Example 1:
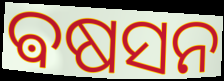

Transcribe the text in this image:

ଵଷସନ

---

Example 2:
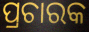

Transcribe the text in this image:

ପ୍ରଚାରକ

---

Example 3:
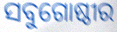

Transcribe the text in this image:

ସବୁଗୋଷ୍ଠୀର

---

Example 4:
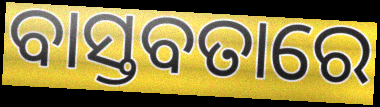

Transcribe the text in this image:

ବାସ୍ତବତାରେ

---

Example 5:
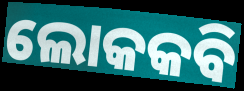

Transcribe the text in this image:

ଲୋକକବି